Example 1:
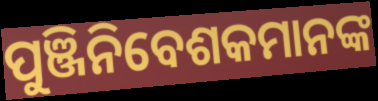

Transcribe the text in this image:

ପୁଞ୍ଜିନିବେଶକମାନଙ୍କ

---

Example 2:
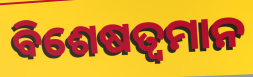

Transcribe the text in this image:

ବିଶେଷତ୍ଵମାନ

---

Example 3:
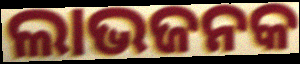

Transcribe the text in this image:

ଲାଭଜନକ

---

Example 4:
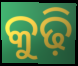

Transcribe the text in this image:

କୁଢ଼ି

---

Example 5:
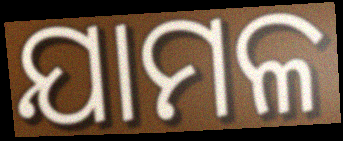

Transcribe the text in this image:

ଯାମଳ